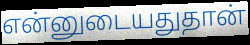
என்னுடையதுதான்